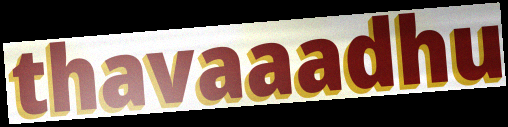
thavaaadhu